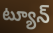
ట్యూన్